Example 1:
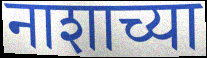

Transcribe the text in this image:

नाशाच्या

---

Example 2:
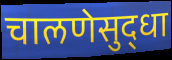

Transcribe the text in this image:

चालणेसुद्धा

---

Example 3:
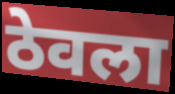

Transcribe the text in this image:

ठेवला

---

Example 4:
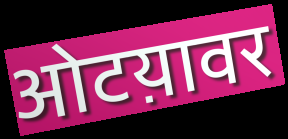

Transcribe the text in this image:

ओटय़ावर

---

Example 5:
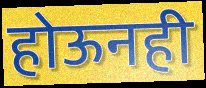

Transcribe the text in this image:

होऊनही